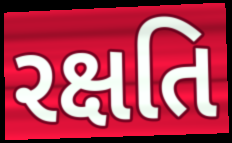
રક્ષતિ